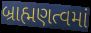
બ્રાહ્મણત્વમાં